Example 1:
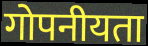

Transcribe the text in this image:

गोपनीयता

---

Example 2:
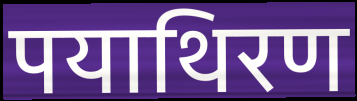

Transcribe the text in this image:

पयाथिरण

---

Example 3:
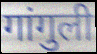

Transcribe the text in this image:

गांगुली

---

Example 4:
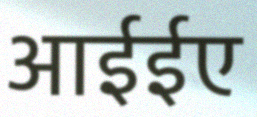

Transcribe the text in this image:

आईईए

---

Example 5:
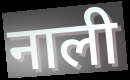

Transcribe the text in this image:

नाली